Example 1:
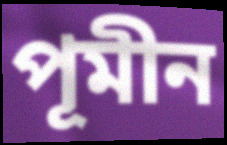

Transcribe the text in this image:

পূমীন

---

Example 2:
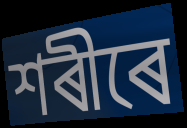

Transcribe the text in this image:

শৰীৰে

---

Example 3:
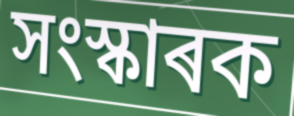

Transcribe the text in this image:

সংস্কাৰক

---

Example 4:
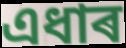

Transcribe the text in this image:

এধাৰ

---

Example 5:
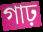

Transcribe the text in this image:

গাঢ়